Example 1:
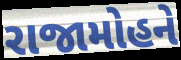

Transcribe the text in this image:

રાજામોહને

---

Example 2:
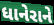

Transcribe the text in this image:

ધાનેરાને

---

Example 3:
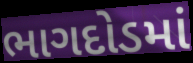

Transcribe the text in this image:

ભાગદોડમાં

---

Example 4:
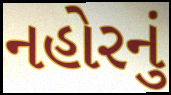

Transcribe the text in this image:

નહોરનું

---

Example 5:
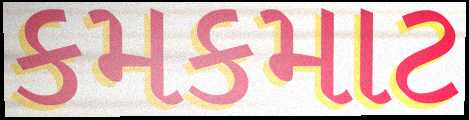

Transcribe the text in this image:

કમકમાટ